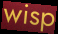
wisp